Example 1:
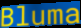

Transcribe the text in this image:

Bluma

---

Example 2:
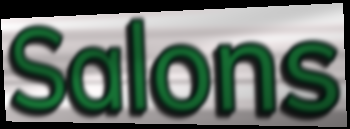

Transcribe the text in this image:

Salons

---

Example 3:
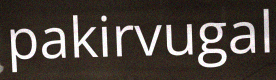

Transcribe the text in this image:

pakirvugal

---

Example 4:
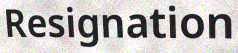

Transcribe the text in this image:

Resignation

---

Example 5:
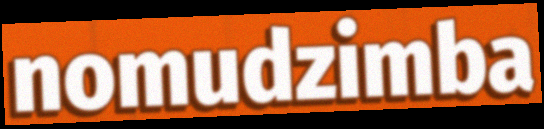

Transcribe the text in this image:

nomudzimba